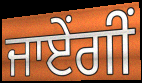
ਜਾਏਂਗੀਂ